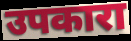
उपकारा